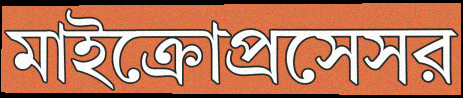
মাইক্রোপ্রসেসর